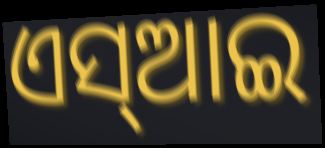
ଏସ୍ଆଇ